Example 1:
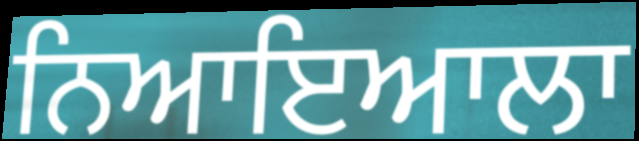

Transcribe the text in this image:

ਨਿਆਇਆਲਾ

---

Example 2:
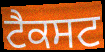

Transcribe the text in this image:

ਟੈਕਸਟ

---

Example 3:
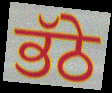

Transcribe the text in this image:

ਭੱਠੇ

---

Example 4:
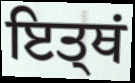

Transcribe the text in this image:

ਇਤ੍ਥਂ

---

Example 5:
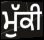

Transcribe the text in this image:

ਮੁੱਕੀ